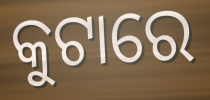
କୁଟାରେ